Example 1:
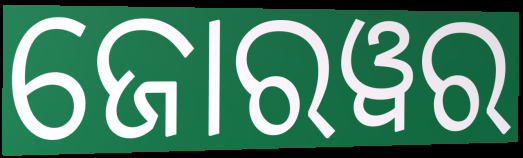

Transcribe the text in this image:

ଜୋରୱର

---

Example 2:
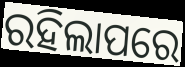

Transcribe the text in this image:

ରହିଲାପରେ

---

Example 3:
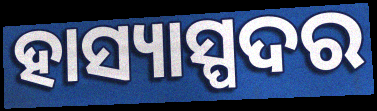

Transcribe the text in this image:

ହାସ୍ୟାସ୍ପଦର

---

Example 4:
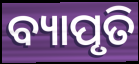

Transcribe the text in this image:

ବ୍ୟାପୃତି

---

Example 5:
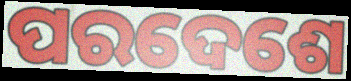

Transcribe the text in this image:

ପରଦେଶେ